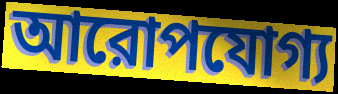
আরোপযোগ্য